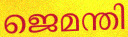
ജെമന്തി